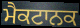
ਮੈਕਟਾਨਕ